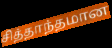
சித்தாந்தமான